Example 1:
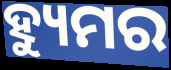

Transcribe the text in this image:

ହ୍ୟୁମର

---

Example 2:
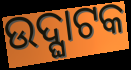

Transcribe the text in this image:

ଉଦ୍ଘାଟକ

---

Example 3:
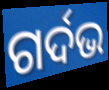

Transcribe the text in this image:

ଗର୍ଦଭ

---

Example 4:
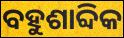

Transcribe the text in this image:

ବହୁଶାବ୍ଦିକ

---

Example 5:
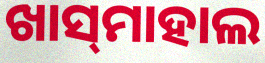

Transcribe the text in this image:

ଖାସ୍‌ମାହାଲ